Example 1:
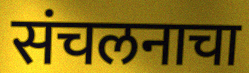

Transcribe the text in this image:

संचलनाचा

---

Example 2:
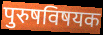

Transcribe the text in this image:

पुरुषविषयक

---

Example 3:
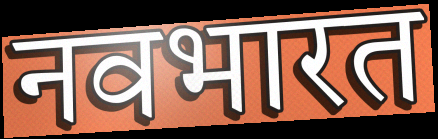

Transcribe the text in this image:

नवभारत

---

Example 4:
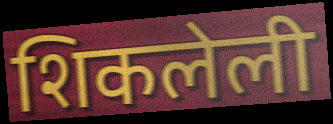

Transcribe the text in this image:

शिकलेली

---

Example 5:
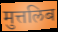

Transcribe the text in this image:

मुत्तलिब